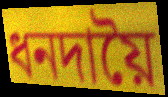
ধনদায়ৈ